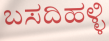
ಬಸದಿಹಳ್ಳಿ